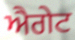
ਐਗੇਟ